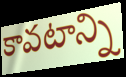
కావటాన్ని